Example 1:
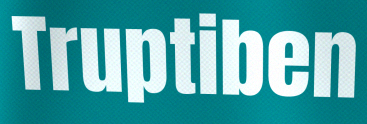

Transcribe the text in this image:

Truptiben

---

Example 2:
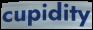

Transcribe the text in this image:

cupidity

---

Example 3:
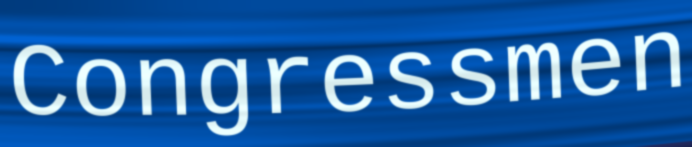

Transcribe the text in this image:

Congressmen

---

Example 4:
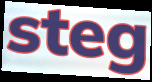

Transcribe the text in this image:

steg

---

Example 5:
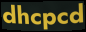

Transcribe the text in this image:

dhcpcd